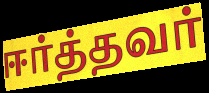
ஈர்த்தவர்